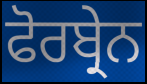
ਫੋਰਬ੍ਰੇਨ